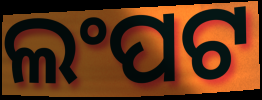
ଲଂପଟ